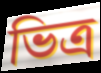
ভিত্র